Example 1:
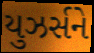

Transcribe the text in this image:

યુઝર્સને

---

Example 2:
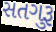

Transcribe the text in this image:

સતગુરૂ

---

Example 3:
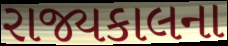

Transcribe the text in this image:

રાજ્યકાલના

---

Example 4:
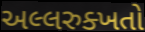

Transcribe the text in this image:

અલ્લરુક્ખતો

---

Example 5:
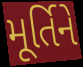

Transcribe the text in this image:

મૂર્તિને